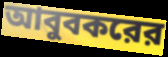
আবুবকরের